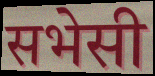
सभेसी